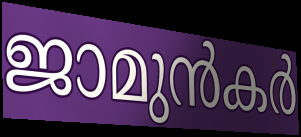
ജാമുൻകർ